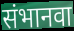
संभानवा